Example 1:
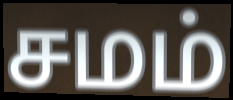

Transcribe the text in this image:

சமம்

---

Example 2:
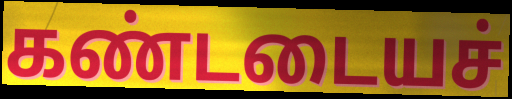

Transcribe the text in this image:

கண்டடையச்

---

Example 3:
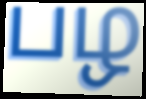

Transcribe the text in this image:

பழ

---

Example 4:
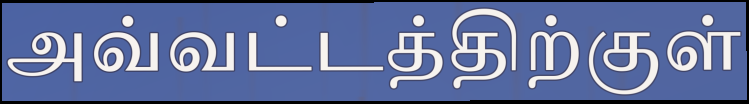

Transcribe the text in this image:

அவ்வட்டத்திற்குள்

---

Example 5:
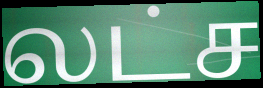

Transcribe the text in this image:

லட்ச